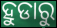
ହୁଡାରୁ